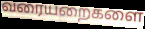
வரையறைகளை